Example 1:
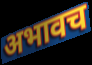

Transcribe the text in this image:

अभावच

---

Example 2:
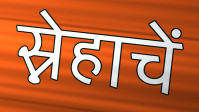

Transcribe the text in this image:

स्नेहाचें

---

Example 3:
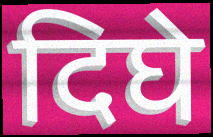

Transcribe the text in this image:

दिघे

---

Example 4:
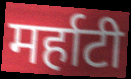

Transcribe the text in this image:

मर्हाटी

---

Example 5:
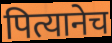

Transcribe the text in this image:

पित्यानेच